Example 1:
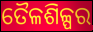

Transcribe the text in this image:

ତୈଳଶିଳ୍ପର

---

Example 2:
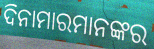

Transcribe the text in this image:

ଦିନାମାରମାନଙ୍କର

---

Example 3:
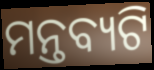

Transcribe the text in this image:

ମନ୍ତବ୍ୟଟି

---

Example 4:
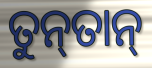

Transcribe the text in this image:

ତୁନ୍‍ତାନ୍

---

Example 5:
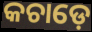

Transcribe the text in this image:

କଚାଡ଼େ